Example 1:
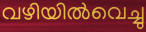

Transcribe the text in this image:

വഴിയിൽവെച്ചു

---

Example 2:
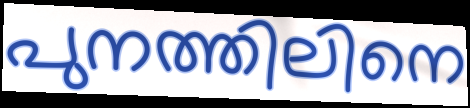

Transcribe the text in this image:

പുനത്തിലിനെ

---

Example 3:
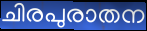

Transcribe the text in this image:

ചിരപുരാതന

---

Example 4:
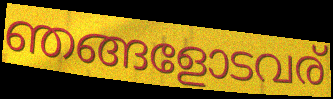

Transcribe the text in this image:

ഞങ്ങളോടവര്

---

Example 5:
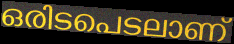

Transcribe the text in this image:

ഒരിടപെടലാണ്